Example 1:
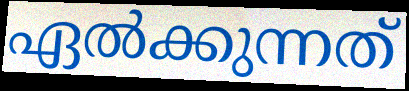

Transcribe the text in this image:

ഏൽക്കുന്നത്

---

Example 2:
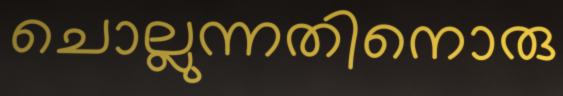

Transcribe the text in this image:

ചൊല്ലുന്നതിനൊരു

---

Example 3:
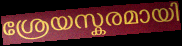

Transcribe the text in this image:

ശ്രേയസ്കരമായി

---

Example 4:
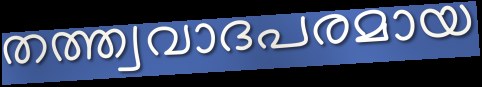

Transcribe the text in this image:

തത്ത്വവാദപരമായ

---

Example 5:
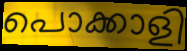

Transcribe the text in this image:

പൊക്കാളി